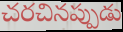
చరచినప్పుడు